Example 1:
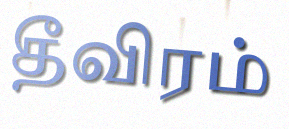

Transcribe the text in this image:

தீவிரம்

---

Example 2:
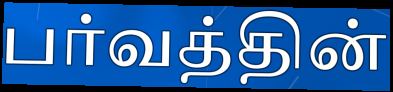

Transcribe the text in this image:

பர்வத்தின்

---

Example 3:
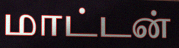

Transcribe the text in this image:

மாட்டன்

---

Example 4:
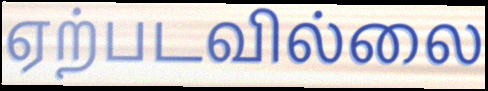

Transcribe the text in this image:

ஏற்படவில்லை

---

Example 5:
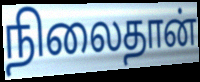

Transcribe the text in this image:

நிலைதான்